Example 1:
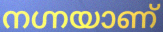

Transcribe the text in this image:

നഗ്നയാണ്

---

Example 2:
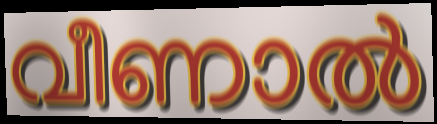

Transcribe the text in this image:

വീണാൽ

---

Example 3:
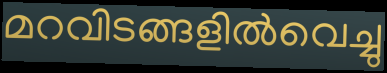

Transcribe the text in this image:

മറവിടങ്ങളിൽവെച്ചു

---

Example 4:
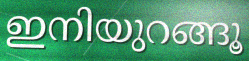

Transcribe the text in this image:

ഇനിയുറങ്ങൂ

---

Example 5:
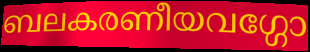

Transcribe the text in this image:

ബലകരണീയവഗ്ഗോ